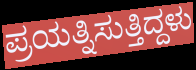
ಪ್ರಯತ್ನಿಸುತ್ತಿದ್ದಳು